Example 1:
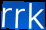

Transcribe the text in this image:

rrk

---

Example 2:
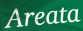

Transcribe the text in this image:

Areata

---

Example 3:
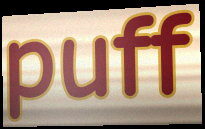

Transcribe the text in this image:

puff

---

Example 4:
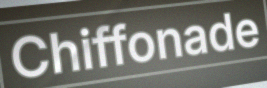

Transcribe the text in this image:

Chiffonade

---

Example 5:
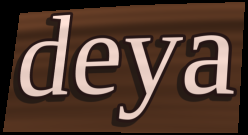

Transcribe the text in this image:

deya